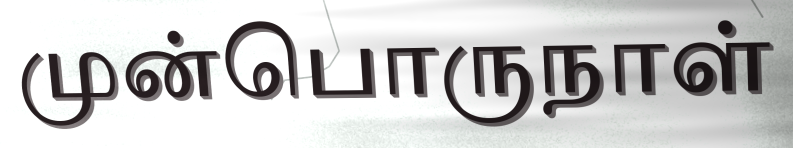
முன்பொருநாள்